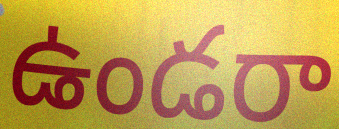
ఉండరా